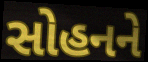
સોહનને